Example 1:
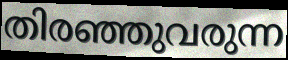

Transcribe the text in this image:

തിരഞ്ഞുവരുന്ന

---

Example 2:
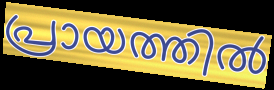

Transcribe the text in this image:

പ്രായത്തിൽ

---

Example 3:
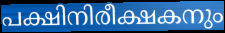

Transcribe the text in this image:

പക്ഷിനിരീക്ഷകനും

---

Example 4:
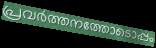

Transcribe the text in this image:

പ്രവർത്തനത്തോടൊപ്പം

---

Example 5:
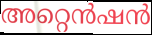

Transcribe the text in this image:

അറ്റെൻഷൻ